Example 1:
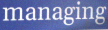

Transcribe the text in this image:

managing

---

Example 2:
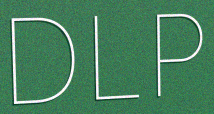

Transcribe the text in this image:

DLP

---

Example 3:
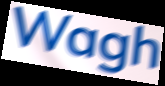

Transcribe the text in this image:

Wagh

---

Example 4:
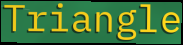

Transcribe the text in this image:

Triangle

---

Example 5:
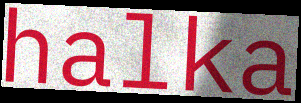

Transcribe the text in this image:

halka